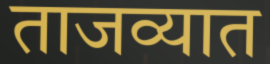
ताजव्यात